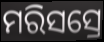
ମରିସସ୍ରେ